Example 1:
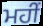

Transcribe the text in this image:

ਮਹੀਂ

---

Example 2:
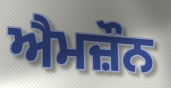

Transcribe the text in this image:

ਐਮਜ਼ੌਨ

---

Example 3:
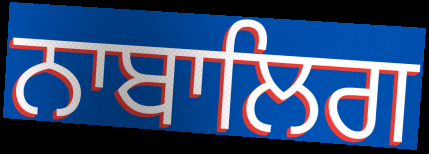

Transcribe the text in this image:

ਨਾਬਾਲਿਗ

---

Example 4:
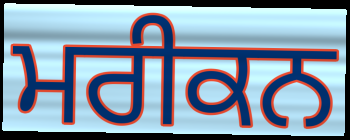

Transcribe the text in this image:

ਮਰੀਕਨ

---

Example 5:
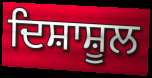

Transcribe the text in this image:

ਦਿਸ਼ਾਸ਼ੂਲ